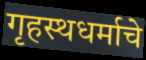
गृहस्थधर्माचे